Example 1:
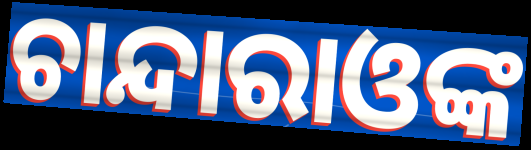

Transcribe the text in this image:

ଚାନ୍ଦାରାଓଙ୍କ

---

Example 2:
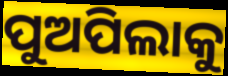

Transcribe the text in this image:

ପୁଅପିଲାକୁ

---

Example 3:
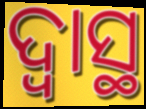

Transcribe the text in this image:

ଦ୍ୱାସ୍ଥ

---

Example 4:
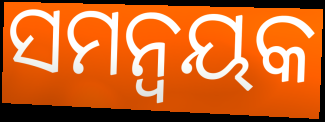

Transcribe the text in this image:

ସମନ୍ୱୟକ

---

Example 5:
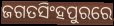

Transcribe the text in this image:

ଜଗତସିଂହପୁରରେ